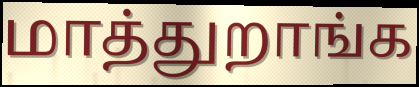
மாத்துறாங்க